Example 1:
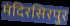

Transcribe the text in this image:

मंदिरसिरपुर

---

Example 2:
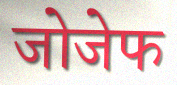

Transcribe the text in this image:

जोजेफ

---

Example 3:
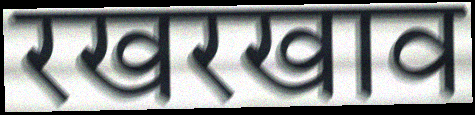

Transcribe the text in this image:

रखरखाव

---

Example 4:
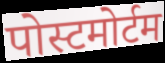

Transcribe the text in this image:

पोस्टमोर्टम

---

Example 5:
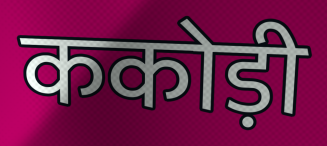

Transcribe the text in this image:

ककोड़ी